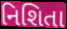
નિશિતા